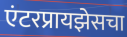
एंटरप्रायझेसचा